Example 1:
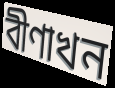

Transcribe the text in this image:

বীণাখন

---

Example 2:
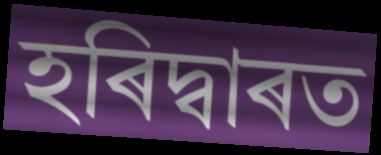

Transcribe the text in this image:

হৰিদ্বাৰত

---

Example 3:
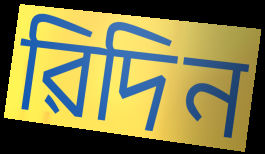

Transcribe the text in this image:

ৱিদিন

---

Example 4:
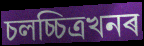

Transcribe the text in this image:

চলচ্চিত্ৰখনৰ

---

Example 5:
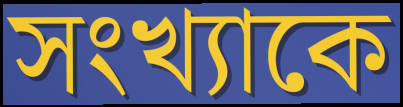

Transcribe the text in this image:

সংখ্যাকে